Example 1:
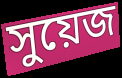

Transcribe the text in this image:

সুয়েজ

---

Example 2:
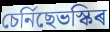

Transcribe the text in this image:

চেৰ্নিছেভস্কিৰ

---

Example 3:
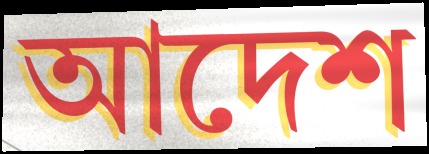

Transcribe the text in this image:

আদেশ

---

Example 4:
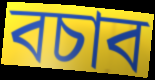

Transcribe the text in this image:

বচাব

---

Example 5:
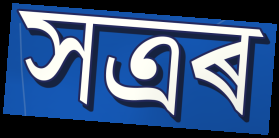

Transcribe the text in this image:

সত্ৰৰ